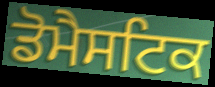
ਡੋਮੈਸਟਿਕ